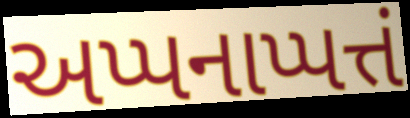
અપ્પનાપ્પત્તં